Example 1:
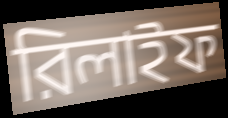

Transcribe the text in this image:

রিলাইফ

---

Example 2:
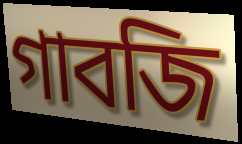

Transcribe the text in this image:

গাবজি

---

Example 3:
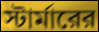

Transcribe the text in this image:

স্টার্মারের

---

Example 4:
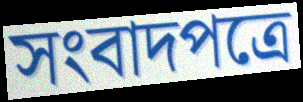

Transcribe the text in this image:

সংবাদপত্রে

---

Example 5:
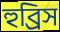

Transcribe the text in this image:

হুব্রিস